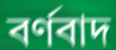
বর্ণবাদ